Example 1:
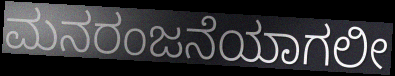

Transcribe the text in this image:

ಮನರಂಜನೆಯಾಗಲೀ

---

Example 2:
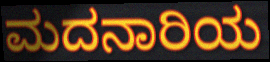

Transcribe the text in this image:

ಮದನಾರಿಯ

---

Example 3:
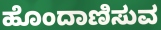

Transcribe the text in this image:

ಹೊಂದಾಣಿಸುವ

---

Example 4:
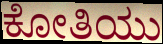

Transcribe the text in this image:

ಕೋತಿಯು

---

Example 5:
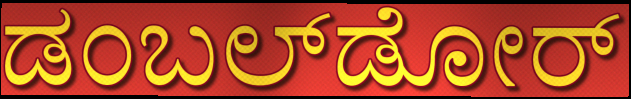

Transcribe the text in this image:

ಡಂಬಲ್‌ಡೋರ್